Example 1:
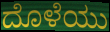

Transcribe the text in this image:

ದೊಳೆಯು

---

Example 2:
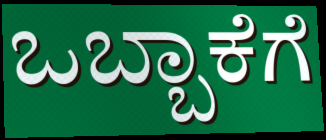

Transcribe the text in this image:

ಒಬ್ಬಾಕೆಗೆ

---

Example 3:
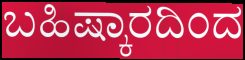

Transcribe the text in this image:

ಬಹಿಷ್ಕಾರದಿಂದ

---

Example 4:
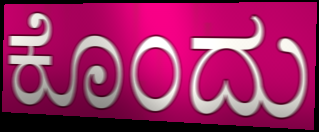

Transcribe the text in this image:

ಕೊಂದು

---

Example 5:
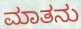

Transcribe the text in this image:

ಮಾತನು